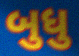
બુધુ